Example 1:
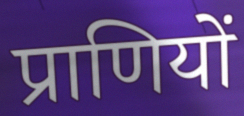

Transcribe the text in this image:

प्राणियों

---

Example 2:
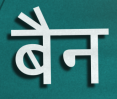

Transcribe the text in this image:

बैन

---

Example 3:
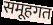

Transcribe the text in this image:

समूहगत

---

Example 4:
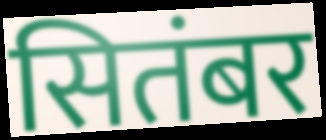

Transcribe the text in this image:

सितंबर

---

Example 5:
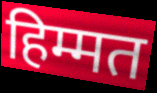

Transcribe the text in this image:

हिम्मत